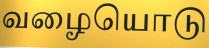
வழையொடு